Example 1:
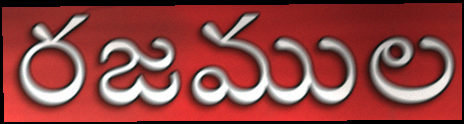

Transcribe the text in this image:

రజముల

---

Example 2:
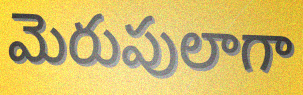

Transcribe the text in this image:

మెరుపులాగా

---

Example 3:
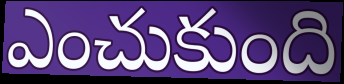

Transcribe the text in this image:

ఎంచుకుంది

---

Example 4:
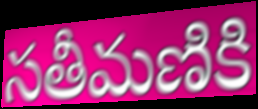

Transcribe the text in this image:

సతీమణికి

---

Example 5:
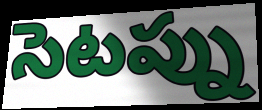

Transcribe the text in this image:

సెటప్ను